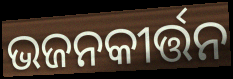
ଭଜନକୀର୍ତ୍ତନ